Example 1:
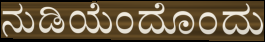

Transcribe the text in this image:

ನುಡಿಯೆಂದೊಂದು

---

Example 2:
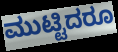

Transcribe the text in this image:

ಮುಟ್ಟಿದರೂ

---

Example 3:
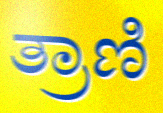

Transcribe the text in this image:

ತ್ರಾಣಿ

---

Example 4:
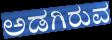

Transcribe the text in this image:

ಅಡಗಿರುವ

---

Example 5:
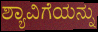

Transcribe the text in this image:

ಶ್ಯಾವಿಗೆಯನ್ನು